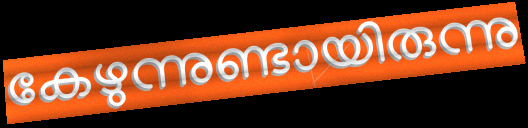
കേഴുന്നുണ്ടായിരുന്നു